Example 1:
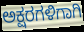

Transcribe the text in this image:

ಅಕ್ಷರಗಳಿಗಾಗಿ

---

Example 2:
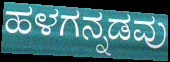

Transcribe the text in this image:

ಹಳಗನ್ನಡವು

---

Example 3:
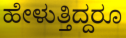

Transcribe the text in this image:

ಹೇಳುತ್ತಿದ್ದರೂ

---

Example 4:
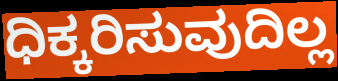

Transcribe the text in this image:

ಧಿಕ್ಕರಿಸುವುದಿಲ್ಲ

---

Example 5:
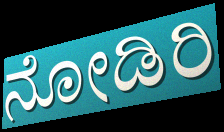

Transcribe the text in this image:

ನೋಡಿರಿ